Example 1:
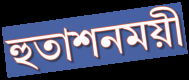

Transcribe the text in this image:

হুতাশনময়ী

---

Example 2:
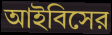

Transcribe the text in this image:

আইবিসের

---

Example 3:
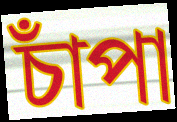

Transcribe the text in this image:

চাঁপা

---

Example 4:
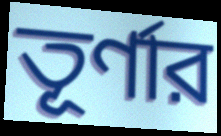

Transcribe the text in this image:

তূর্ণার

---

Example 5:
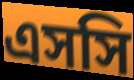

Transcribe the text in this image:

এসসি